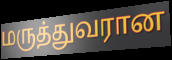
மருத்துவரான